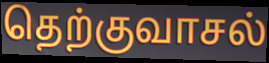
தெற்குவாசல்